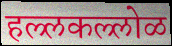
हल्लकल्लोळ